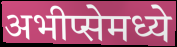
अभीप्सेमध्ये